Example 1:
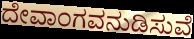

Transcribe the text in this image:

ದೇವಾಂಗವನುಡಿಸುವೆ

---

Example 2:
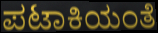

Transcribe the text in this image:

ಪಟಾಕಿಯಂತೆ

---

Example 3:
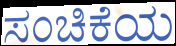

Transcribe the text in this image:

ಸಂಚಿಕೆಯ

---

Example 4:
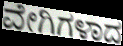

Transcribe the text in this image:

ವೇಗಿಗಳಾದ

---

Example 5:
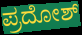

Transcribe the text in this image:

ಪ್ರದೋಶ್